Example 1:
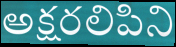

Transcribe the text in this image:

అక్షరలిపిని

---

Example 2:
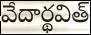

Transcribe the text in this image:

వేదార్థవిత్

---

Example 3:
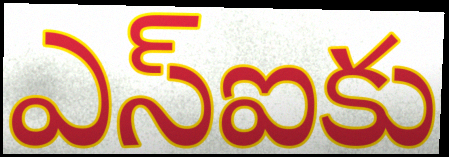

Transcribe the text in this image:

ఎస్ఐకు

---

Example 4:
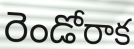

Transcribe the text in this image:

రెండోరాక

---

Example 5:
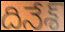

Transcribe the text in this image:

దినేశ్